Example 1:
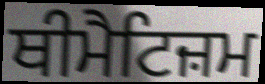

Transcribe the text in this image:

ਥੀਮੈਟਿਜ਼ਮ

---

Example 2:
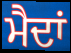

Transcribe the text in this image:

ਮੈਦਾਂ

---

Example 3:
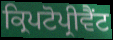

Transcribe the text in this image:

ਕ੍ਰਿਪਟੋਪ੍ਰੀਵੈਂਟ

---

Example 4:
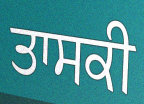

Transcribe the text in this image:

ਤਾਸਕੀ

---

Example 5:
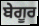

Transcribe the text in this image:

ਬੇਗੂਰ